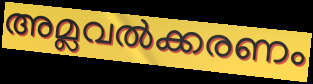
അമ്ലവൽക്കരണം